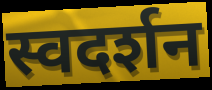
स्वदर्शन